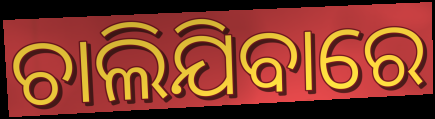
ଚାଲିଯିବାରେ